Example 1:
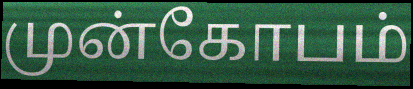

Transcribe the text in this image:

முன்கோபம்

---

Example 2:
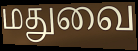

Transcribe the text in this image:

மதுவை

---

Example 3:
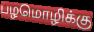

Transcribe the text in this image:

பழமொழிக்கு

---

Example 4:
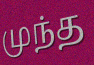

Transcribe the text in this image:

முந்த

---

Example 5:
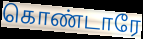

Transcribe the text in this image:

கொண்டாரே